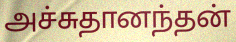
அச்சுதானந்தன்